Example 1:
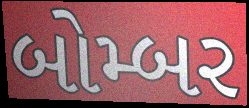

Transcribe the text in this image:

બોમ્બર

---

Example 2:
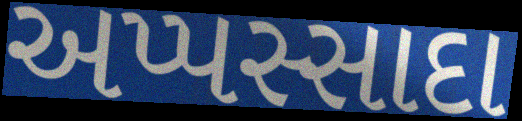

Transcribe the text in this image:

અપ્પસ્સાદા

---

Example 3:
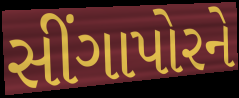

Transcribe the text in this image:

સીંગાપોરને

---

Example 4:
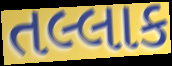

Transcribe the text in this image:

તલ્લાક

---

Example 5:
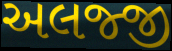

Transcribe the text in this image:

અલજ્જી